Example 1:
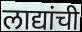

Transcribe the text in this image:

लाद्यांची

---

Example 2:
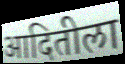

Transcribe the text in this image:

आदितीला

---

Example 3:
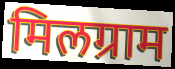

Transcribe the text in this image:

मिलग्राम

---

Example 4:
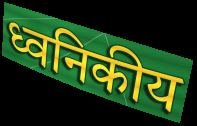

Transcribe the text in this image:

ध्वनिकीय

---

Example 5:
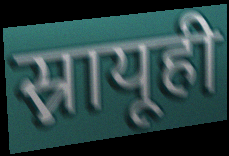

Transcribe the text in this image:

स्नायूही